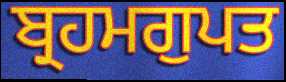
ਬ੍ਰਹਮਗੁਪਤ